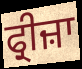
ਫ੍ਰੀਜ਼ਾ